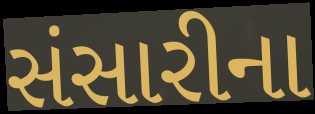
સંસારીના